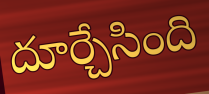
దూర్చేసింది